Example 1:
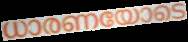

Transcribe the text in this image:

ധാരണയോടെ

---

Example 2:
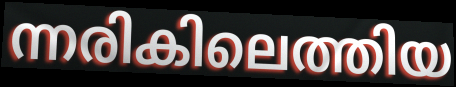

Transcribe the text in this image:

ന്നരികിലെത്തിയ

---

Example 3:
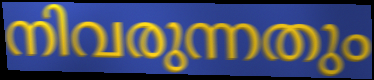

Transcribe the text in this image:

നിവരുന്നതും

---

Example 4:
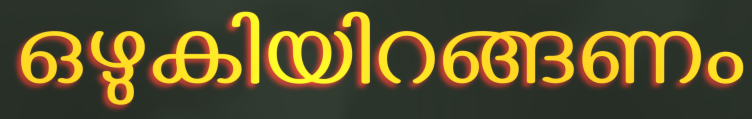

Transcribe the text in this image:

ഒഴുകിയിറങ്ങണം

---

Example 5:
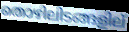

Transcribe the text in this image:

തൊഴിലിടങ്ങളില്